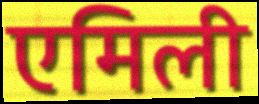
एमिली